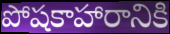
పోషకాహారానికి